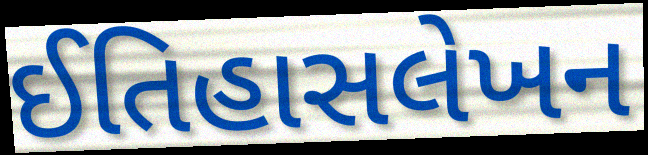
ઈતિહાસલેખન